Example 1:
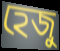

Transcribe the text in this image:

হেজু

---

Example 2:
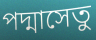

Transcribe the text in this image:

পদ্মাসেতু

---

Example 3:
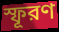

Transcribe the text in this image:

স্ফূরণ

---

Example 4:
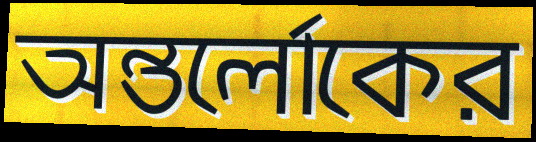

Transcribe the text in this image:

অন্তর্লোকের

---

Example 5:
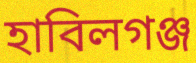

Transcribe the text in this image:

হাবিলগঞ্জ